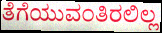
ತೆಗೆಯುವಂತಿರಲಿಲ್ಲ